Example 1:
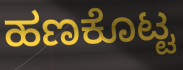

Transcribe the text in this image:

ಹಣಕೊಟ್ಟ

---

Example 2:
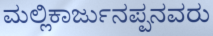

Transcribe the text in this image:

ಮಲ್ಲಿಕಾರ್ಜುನಪ್ಪನವರು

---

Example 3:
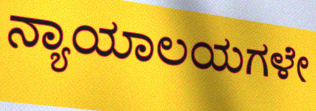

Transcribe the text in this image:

ನ್ಯಾಯಾಲಯಗಳೇ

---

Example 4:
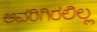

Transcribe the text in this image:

ಅವರಿಗಿರಲಿಲ್ಲ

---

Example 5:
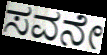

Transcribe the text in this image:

ಸವನೇ